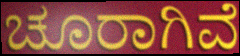
ಚೂರಾಗಿವೆ